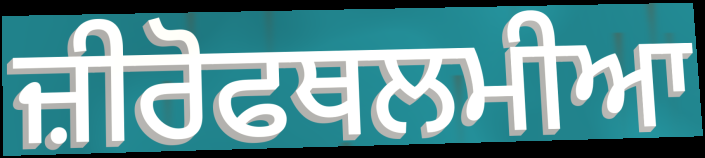
ਜ਼ੀਰੋਫਥਲਮੀਆ